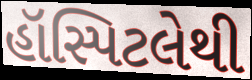
હૉસ્પિટલેથી